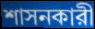
শাসনকারী